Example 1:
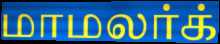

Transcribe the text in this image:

மாமலர்க்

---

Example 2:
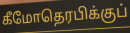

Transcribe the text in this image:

கீமோதெரபிக்குப்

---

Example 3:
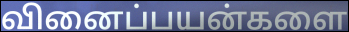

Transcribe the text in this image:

வினைப்பயன்களை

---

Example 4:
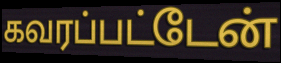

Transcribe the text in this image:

கவரப்பட்டேன்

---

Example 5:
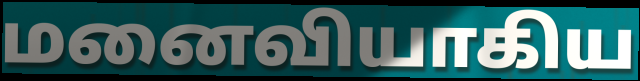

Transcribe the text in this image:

மனைவியாகிய